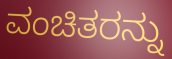
ವಂಚಿತರನ್ನು